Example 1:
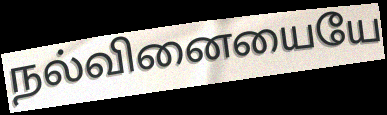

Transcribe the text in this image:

நல்வினையையே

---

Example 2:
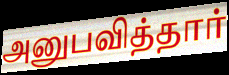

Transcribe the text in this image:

அனுபவித்தார்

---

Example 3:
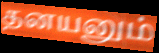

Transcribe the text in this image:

தனயனும்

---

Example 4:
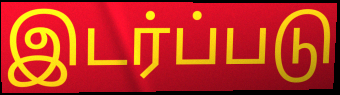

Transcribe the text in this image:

இடர்ப்படு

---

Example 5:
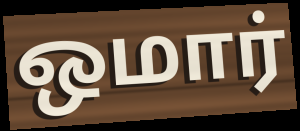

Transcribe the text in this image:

ஒமார்